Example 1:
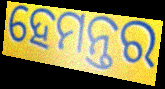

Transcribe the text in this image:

ହେମନ୍ତର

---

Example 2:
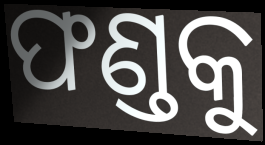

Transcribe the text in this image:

ଫଣ୍ଡକୁ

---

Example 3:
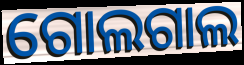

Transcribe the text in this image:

ଗୋଲଗାଲ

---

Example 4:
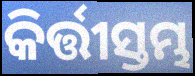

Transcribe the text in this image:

କିର୍ତ୍ତୀସ୍ତମ୍ଭ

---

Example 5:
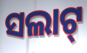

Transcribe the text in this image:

ସଲାଟ୍